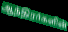
ஆந்திரர்களின்